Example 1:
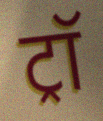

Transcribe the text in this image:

ट्रॉ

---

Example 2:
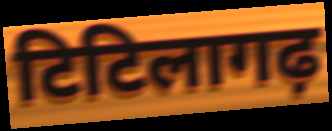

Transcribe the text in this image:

टिटिलागढ़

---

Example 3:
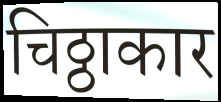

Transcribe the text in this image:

चिठ्ठाकार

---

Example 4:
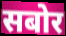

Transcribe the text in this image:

सबोर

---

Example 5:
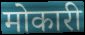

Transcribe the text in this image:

मोकारी